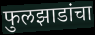
फुलझाडांचा